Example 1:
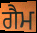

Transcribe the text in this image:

ਗੈਮ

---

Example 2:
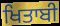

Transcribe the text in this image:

ਖਿਤਾਬੀ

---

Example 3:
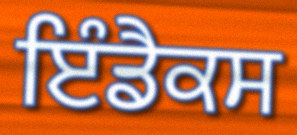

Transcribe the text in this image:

ਇੰਡੈਕਸ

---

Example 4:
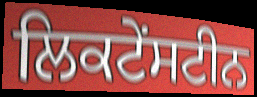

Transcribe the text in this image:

ਲਿਕਟੇਂਸਟੀਨ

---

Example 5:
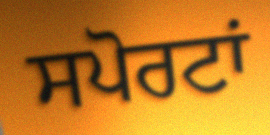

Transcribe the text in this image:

ਸਪੋਰਟਾਂ